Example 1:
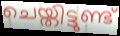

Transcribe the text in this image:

ചെയ്തിട്ടുണ്ട്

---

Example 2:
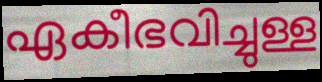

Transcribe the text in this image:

ഏകീഭവിച്ചുള്ള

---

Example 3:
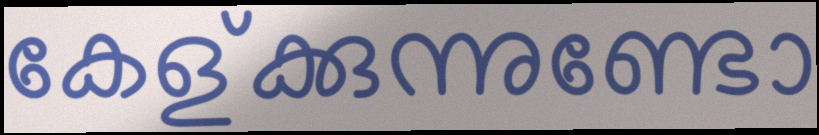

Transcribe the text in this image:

കേള്ക്കുന്നുണ്ടോ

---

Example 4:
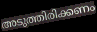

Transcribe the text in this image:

അടുത്തിരിക്കണം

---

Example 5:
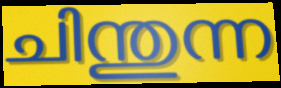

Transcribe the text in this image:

ചിന്തുന്ന